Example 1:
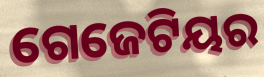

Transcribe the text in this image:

ଗେଜେଟିୟର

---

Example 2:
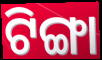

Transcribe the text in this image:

ଟିଙ୍ଗା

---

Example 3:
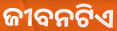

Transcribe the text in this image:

ଜୀବନଟିଏ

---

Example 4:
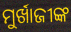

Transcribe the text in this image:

ମୁର୍ଖାଜୀଙ୍କ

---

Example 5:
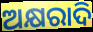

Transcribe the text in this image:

ଅକ୍ଷରାଦି